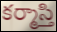
కర్మాస్తి